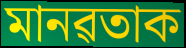
মানৱতাক